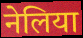
नेलिया